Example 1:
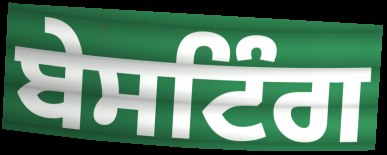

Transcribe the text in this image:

ਬੇਸਟਿੰਗ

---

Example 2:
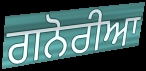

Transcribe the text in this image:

ਗਨੋਰੀਆ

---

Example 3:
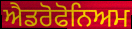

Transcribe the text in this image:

ਐਡਰੋਫੋਨਿਅਮ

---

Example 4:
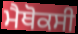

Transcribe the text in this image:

ਮੈਥੋਕਸੀ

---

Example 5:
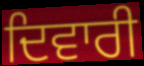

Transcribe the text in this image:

ਦਿਵਾਰੀ